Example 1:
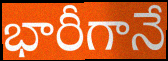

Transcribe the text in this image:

భారీగానే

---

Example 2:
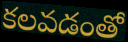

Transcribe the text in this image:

కలవడంతో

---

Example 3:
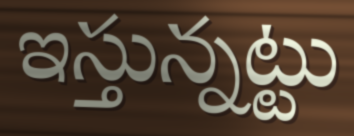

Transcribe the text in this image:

ఇస్తున్నట్టు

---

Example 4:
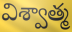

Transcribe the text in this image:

విశ్వాత్మ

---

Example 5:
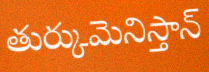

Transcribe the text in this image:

తుర్కుమెనిస్తాన్